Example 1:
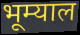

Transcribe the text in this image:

भूम्याल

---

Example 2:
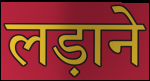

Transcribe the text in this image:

लड़ाने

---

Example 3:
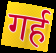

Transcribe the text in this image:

गर्ह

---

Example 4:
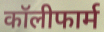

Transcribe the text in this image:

कॉलीफार्म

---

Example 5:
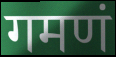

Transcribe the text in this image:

गमणं